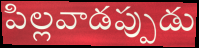
పిల్లవాడప్పుడు